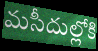
మసీదుల్లోకి